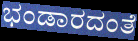
ಭಂಡಾರದಂತೆ